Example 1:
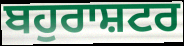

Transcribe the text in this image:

ਬਹੁਰਾਸ਼ਟਰ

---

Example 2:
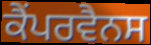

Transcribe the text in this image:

ਕੈਂਪਰਵੈਨਸ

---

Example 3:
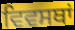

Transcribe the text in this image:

ਵਿਵਸਥਾਂ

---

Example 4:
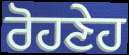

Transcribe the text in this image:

ਰੋਹਣੇਹ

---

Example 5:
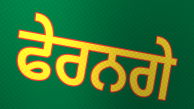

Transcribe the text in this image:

ਫੇਰਨਗੇ